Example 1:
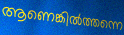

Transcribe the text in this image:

ആണെങ്കിൽത്തന്നെ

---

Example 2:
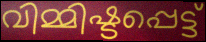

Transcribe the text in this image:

വിമ്മിഷ്ടപ്പെട്ട്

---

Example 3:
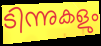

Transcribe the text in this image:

ടിന്നുകളും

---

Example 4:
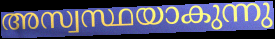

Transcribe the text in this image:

അസ്വസ്ഥയാകുന്നു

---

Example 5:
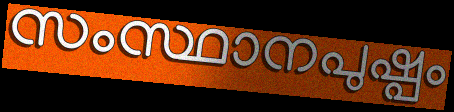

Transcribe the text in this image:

സംസ്ഥാനപുഷ്പം